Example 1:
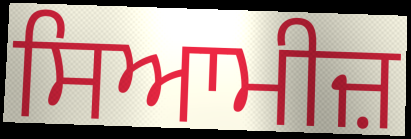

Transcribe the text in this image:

ਸਿਆਮੀਜ਼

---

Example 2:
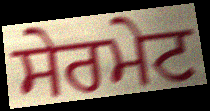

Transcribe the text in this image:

ਸੇਰਮੇਟ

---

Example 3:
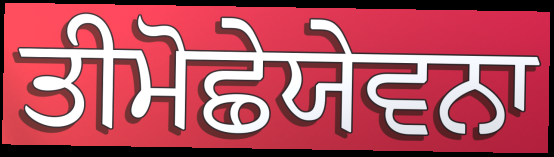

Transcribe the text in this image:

ਤੀਮੋਛੇਯੇਵਨਾ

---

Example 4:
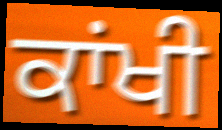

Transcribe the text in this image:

ਕਾਂਖੀ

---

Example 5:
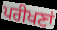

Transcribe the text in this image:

ਪਰੀਖਣਾਂ